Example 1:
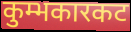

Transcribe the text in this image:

कुम्भकारकट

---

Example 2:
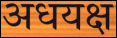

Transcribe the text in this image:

अधयक्ष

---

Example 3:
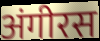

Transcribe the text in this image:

अंगीरस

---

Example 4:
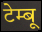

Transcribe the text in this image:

टेम्बू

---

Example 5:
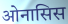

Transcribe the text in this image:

ओनासिस